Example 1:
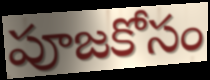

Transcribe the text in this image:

పూజకోసం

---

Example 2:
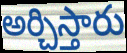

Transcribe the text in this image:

అర్చిస్తారు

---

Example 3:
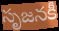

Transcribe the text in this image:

సృజనకీ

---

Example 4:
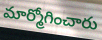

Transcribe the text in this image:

మార్మోగించారు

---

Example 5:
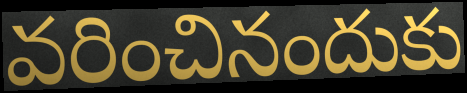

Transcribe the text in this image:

వరించినందుకు